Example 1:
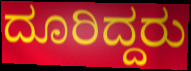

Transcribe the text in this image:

ದೂರಿದ್ದರು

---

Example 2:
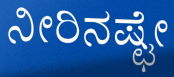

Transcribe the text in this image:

ನೀರಿನಷ್ಟೇ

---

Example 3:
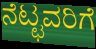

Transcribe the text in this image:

ನೆಟ್ಟವರಿಗೆ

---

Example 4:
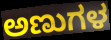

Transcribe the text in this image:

ಅಣುಗಳ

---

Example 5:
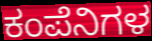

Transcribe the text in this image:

ಕಂಪೆನಿಗಳ